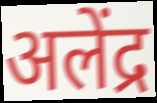
अलेंद्र